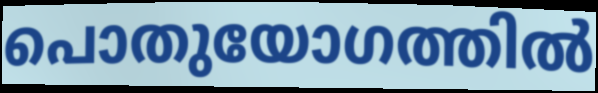
പൊതുയോഗത്തിൽ